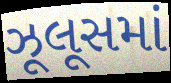
ઝૂલૂસમાં